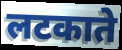
लटकाते